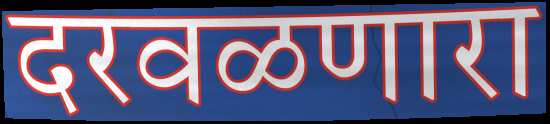
दरवळणारा